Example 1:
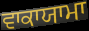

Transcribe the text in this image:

ਵਾਕਾਯਾਮਾ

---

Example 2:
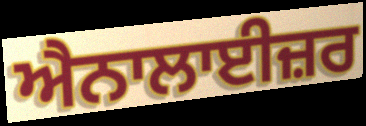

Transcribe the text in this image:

ਐਨਾਲਾਈਜ਼ਰ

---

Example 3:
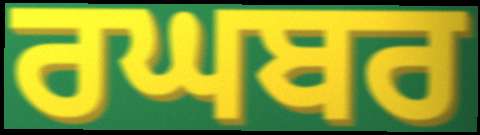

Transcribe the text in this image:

ਰਘਬਰ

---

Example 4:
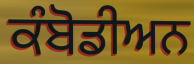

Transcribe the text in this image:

ਕੰਬੋਡੀਅਨ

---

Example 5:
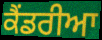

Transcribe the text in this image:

ਕੈਂਡਰੀਆ